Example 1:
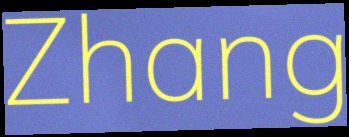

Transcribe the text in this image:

Zhang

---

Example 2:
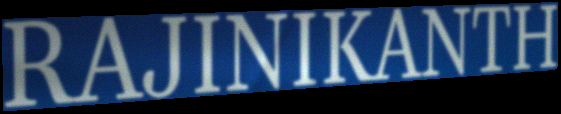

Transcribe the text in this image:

RAJINIKANTH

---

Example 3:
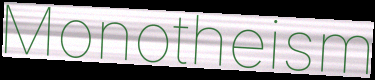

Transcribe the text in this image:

Monotheism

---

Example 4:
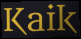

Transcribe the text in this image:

Kaik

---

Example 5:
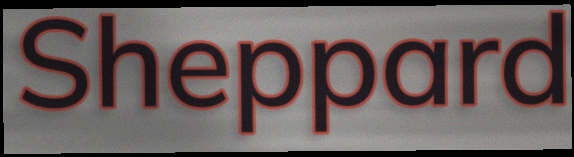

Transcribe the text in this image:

Sheppard